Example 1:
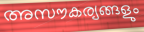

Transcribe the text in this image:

അസൗകര്യങ്ങളും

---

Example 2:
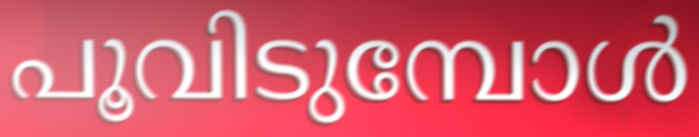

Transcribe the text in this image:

പൂവിടുമ്പോൾ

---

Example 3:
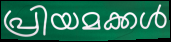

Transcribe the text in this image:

പ്രിയമക്കൾ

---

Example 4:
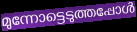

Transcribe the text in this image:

മുന്നോട്ടെടുത്തപ്പോൾ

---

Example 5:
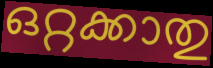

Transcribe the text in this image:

ഒറ്റക്കാതു